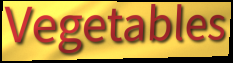
Vegetables